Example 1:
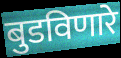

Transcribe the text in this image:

बुडविणारे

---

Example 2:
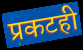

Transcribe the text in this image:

प्रकटही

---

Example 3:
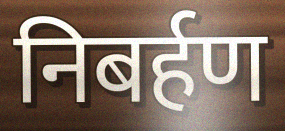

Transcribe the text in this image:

निबर्हण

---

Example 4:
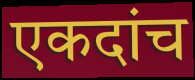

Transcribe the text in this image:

एकदांच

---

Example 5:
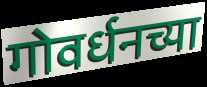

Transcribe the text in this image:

गोवर्धनच्या